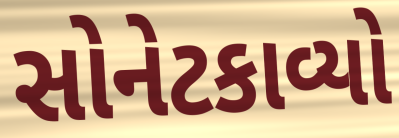
સોનેટકાવ્યો